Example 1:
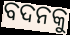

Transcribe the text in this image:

ବଦନକୁ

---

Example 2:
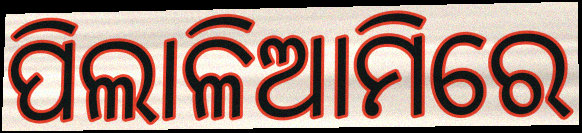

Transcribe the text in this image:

ପିଲାଳିଆମିରେ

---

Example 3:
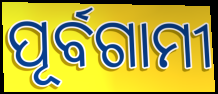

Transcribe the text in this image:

ପୂର୍ବଗାମୀ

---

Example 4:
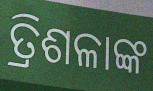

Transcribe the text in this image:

ତ୍ରିଶଳାଙ୍କ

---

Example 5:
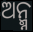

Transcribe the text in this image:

ଅନ୍ମ୍ନ